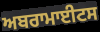
ਅਬਰਾਮਾਈਟਸ